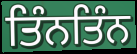
ਤਿੰਨਤਿੰਨ